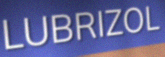
LUBRIZOL